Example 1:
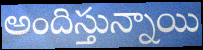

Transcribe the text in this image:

అందిస్తున్నాయి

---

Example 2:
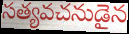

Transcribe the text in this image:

సత్యవచనుడైన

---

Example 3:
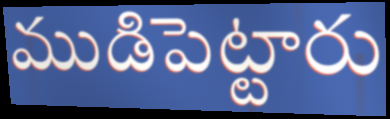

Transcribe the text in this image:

ముడిపెట్టారు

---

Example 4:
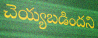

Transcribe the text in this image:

చెయ్యబడిందని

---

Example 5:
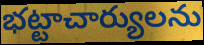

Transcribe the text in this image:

భట్టాచార్యులను